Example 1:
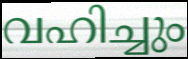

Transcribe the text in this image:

വഹിച്ചും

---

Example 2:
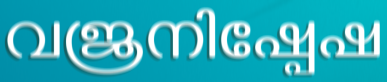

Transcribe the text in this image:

വജ്രനിഷ്പേഷ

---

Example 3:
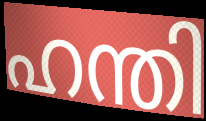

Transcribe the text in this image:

ഹന്തി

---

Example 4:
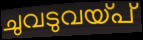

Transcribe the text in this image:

ചുവടുവയ്പ്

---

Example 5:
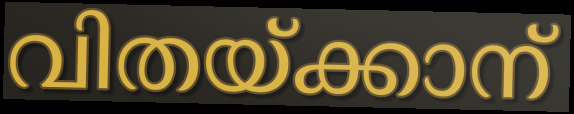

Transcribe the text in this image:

വിതയ്ക്കാന്